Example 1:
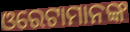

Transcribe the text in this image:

ଓରେଟାମାନଙ୍କ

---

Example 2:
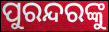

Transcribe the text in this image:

ପୁରନ୍ଦରଙ୍କୁ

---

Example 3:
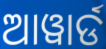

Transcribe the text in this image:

ଆୱାର୍ଡ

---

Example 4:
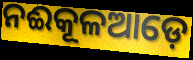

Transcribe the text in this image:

ନଈକୂଳଆଡ଼େ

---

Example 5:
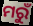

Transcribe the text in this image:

ମରୁଁ